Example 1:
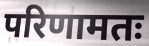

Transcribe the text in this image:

परिणामतः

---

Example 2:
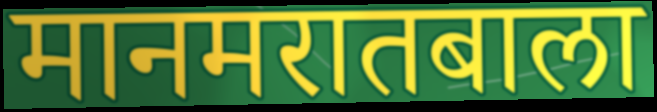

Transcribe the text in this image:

मानमरातबाला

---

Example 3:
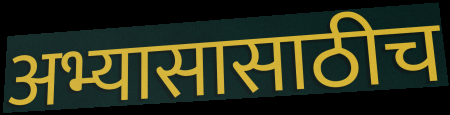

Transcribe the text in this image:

अभ्यासासाठीच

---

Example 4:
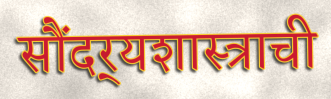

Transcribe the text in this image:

सौंदर्यशास्त्राची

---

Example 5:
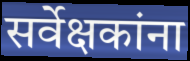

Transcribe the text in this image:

सर्वेक्षकांना